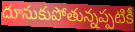
దూసుకుపోతున్నప్పటికీ